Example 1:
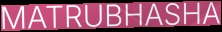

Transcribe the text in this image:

MATRUBHASHA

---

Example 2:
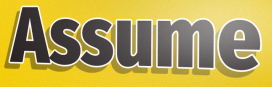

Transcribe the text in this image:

Assume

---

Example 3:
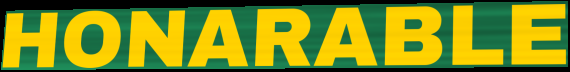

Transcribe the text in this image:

HONARABLE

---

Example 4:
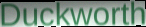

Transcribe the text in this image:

Duckworth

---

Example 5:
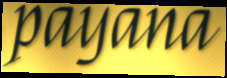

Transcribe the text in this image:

payana